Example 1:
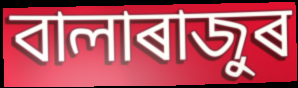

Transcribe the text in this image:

বালাৰাজুৰ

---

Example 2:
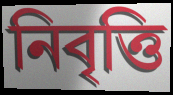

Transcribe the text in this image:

নিবৃত্তি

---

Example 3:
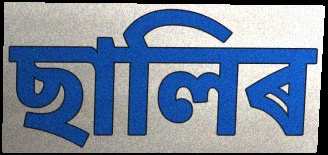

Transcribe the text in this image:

ছালিৰ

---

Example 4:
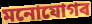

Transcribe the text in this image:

মনোযোগৰ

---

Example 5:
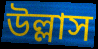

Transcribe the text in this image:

উল্লাস